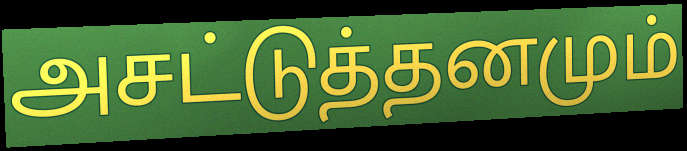
அசட்டுத்தனமும்